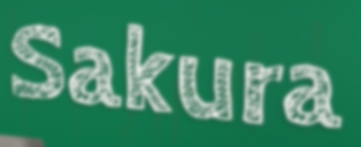
Sakura